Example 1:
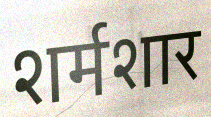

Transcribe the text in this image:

शर्मशार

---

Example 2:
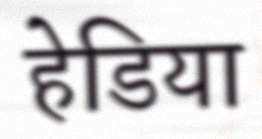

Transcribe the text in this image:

हेडिया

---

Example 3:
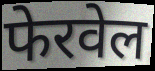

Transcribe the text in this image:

फेरवेल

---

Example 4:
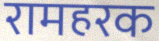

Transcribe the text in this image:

रामहरक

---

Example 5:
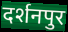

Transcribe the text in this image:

दर्शनपुर